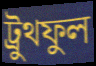
ট্রুথফুল